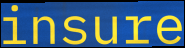
insure